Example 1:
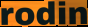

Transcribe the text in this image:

rodin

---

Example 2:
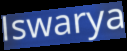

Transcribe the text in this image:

Iswarya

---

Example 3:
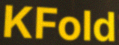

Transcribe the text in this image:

KFold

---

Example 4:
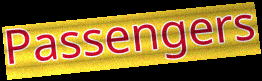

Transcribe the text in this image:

Passengers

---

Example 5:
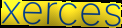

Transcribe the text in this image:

xerces